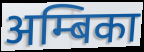
अम्बिका